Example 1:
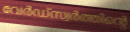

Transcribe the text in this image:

വേർഡ്സ്വർത്തിന്റെ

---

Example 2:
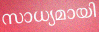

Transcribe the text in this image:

സാധ്യമായി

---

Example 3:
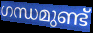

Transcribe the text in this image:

ഗന്ധമുണ്ട്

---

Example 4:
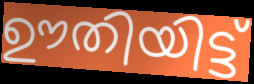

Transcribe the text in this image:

ഊതിയിട്ട്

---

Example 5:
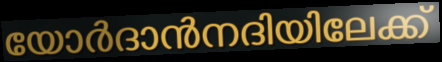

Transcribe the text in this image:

യോർദാൻനദിയിലേക്ക്